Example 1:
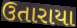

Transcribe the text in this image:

ઉતારાયા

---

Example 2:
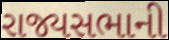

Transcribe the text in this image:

રાજ્યસભાની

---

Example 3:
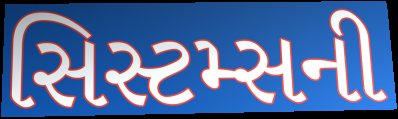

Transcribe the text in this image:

સિસ્ટમ્સની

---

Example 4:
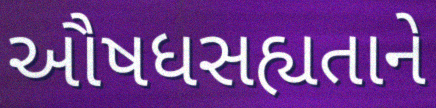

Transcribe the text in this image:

ઔષધસહ્યતાને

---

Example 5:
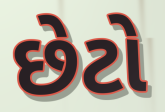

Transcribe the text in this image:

છેટો